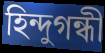
হিন্দুগন্ধী